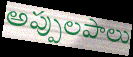
అప్పులపాలు